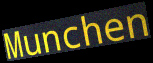
Munchen